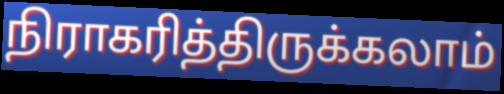
நிராகரித்திருக்கலாம்